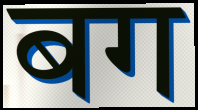
बग